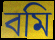
বমি